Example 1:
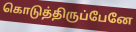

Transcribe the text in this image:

கொடுத்திருப்பேனே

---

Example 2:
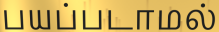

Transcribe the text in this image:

பயப்படாமல்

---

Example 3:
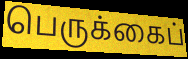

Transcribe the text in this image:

பெருக்கைப்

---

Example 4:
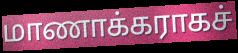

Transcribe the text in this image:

மாணாக்கராகச்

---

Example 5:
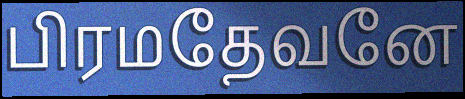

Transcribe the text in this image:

பிரமதேவனே